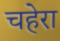
चहेरा